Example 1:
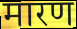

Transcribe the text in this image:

मारण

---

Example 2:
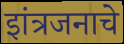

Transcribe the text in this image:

इांत्रजनाचे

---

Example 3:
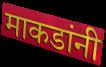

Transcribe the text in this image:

माकडांनी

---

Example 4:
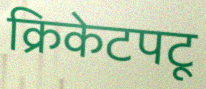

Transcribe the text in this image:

क्रिकेटपटू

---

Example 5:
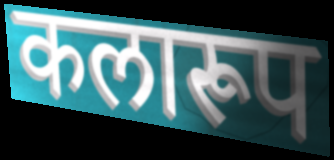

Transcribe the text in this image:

कलारूप